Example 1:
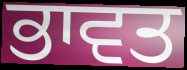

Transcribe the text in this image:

ਭਾਵਤ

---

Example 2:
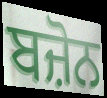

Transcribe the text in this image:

ਬਜ਼ੋਨ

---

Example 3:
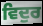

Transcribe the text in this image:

ਵਿਦੁਰ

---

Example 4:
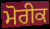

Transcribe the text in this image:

ਮੋਰੀਕ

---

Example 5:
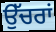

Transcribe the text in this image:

ਉੱਚਰਾਂ